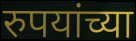
रुपयांच्या